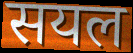
सयल